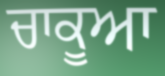
ਚਾਕੂਆ